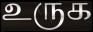
உருக